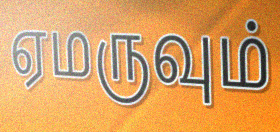
ஏமருவும்